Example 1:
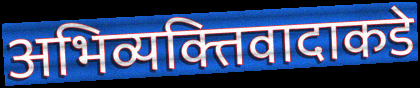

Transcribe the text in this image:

अभिव्यक्तिवादाकडे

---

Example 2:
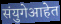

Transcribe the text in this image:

संयुगेआहेत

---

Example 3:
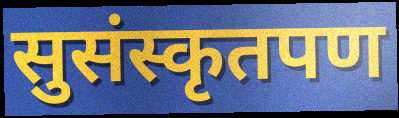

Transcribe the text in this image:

सुसंस्कृतपण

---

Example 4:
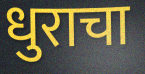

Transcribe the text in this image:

धुराचा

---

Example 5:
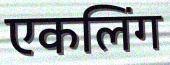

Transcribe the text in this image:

एकलिंग